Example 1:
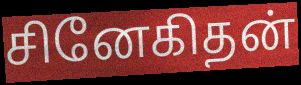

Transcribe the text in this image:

சினேகிதன்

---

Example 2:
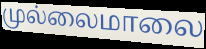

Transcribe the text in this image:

முல்லைமாலை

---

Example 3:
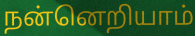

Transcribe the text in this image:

நன்னெறியாம்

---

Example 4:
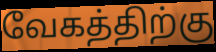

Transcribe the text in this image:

வேகத்திற்கு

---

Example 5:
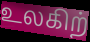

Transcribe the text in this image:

உலகிற்